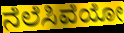
ನೆಲೆಸಿವೆಯೋ